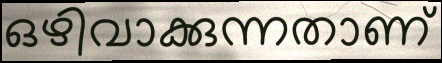
ഒഴിവാക്കുന്നതാണ്